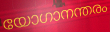
യോഗാനന്തരം